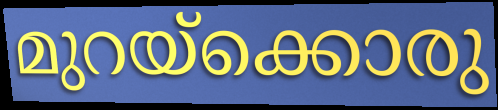
മുറയ്ക്കൊരു